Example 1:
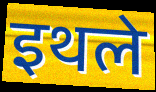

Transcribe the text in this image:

इथले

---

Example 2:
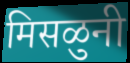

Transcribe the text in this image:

मिसळुनी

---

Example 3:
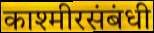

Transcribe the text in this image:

काश्मीरसंबंधी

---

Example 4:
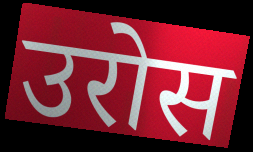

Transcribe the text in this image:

उरोस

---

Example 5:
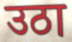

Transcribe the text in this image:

उठा